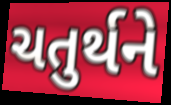
ચતુર્થને